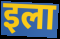
इला